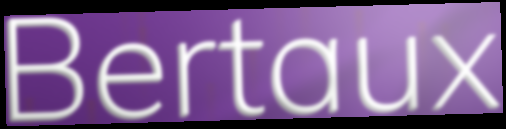
Bertaux